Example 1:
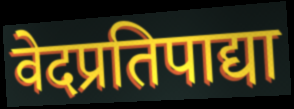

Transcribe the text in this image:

वेदप्रतिपाद्या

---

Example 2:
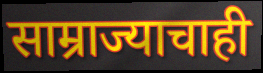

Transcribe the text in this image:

साम्राज्याचाही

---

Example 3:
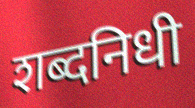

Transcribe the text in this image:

शब्दनिधी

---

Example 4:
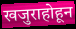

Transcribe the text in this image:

खजुराहोहून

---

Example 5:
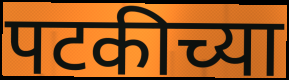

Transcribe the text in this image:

पटकीच्या